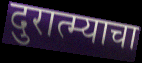
दुरात्म्याचा